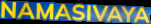
NAMASIVAYA